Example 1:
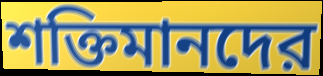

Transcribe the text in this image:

শক্তিমানদের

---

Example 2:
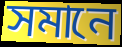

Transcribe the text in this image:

সমানে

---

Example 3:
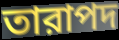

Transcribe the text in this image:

তারাপদ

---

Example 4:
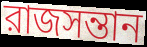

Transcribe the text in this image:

রাজসন্তান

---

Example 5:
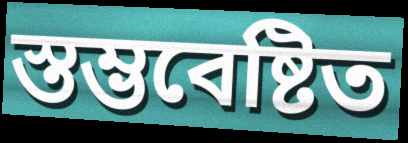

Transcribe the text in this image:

স্তম্ভবেষ্টিত